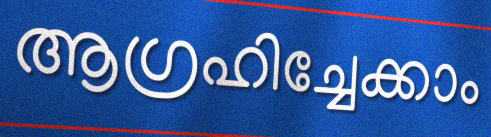
ആഗ്രഹിച്ചേക്കാം